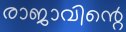
രാജാവിന്റെ